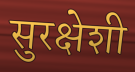
सुरक्षेशी